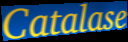
Catalase